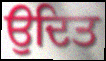
ਉਦਿਤ